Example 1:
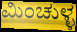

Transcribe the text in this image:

ಮಿಂಚುಳ್ಳ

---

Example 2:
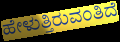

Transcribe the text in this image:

ಹೇಳುತ್ತಿರುವಂತಿದೆ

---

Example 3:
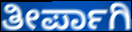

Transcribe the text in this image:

ತೀರ್ಪಾಗಿ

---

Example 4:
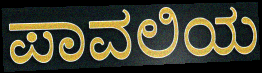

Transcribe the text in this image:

ಪಾವಲಿಯ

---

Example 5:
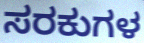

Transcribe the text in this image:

ಸರಕುಗಳ